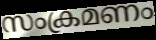
സംക്രമണം